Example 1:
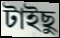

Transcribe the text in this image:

টাইছু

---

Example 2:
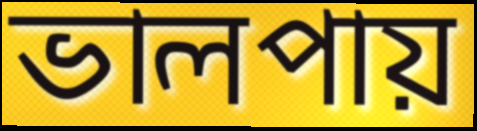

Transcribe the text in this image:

ভালপায়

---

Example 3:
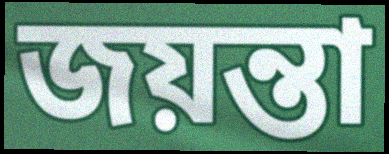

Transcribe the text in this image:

জয়ন্তা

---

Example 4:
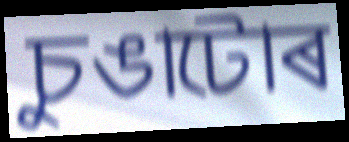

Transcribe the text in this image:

চুঙাটোৰ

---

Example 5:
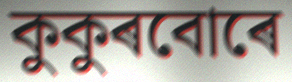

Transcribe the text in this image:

কুকুৰবোৰে